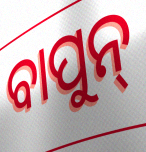
ବାପୁନ୍